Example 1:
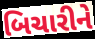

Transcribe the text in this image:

બિચારીને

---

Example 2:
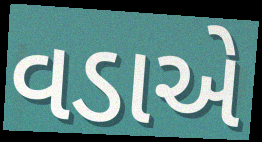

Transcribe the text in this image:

વડાએ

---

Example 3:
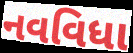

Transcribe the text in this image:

નવવિધા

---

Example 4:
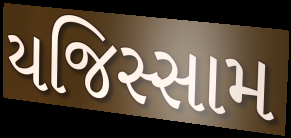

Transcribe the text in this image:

યજિસ્સામ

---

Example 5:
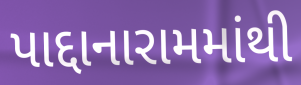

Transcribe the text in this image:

પાદ્દાનારામમાંથી